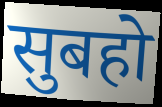
सुबहो